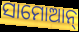
ସାମୋଆନ୍